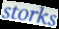
storks